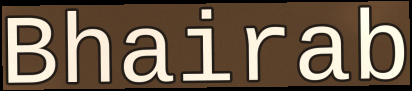
Bhairab